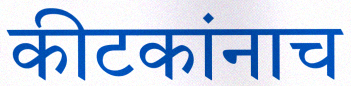
कीटकांनाच